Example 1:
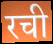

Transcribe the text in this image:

रची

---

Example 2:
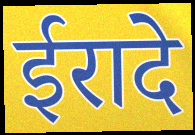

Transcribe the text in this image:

ईरादे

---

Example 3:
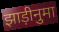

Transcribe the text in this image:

झाड़ीनुमा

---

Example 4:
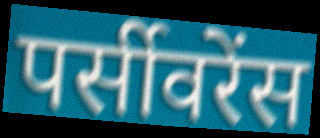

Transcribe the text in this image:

पर्सीवरेंस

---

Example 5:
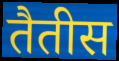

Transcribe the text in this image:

तैतीस